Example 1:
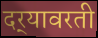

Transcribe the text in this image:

दर्यावरती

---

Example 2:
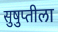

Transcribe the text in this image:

सुषुप्तीला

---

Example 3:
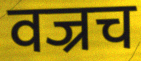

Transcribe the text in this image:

वज्रच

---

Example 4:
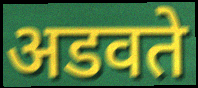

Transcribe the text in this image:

अडवते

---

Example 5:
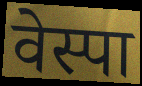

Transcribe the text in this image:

वेस्पा